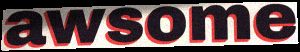
awsome